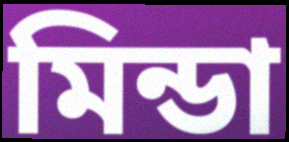
মিন্ডা